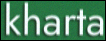
kharta